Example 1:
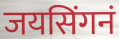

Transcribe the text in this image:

जयसिंगनं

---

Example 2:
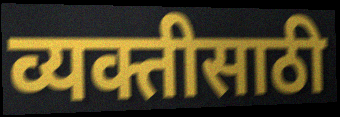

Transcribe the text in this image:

व्यक्तीसाठी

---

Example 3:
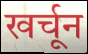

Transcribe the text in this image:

खर्चून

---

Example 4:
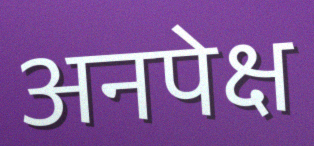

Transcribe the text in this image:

अनपेक्ष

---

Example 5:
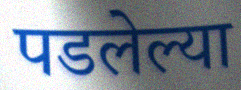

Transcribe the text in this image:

पडलेल्या